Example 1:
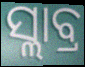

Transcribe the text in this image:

ସ୍ଲାବ୍ର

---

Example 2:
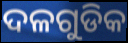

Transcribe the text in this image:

ଦଳଗୁଡିକ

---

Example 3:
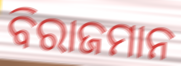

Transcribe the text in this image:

ବିରାଜମାନ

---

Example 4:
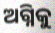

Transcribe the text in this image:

ଅଗ୍ନିକୁ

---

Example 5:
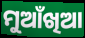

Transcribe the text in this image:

ମୁଆଁଖିଆ